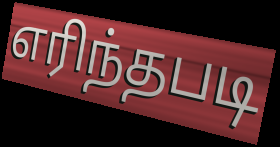
எரிந்தபடி